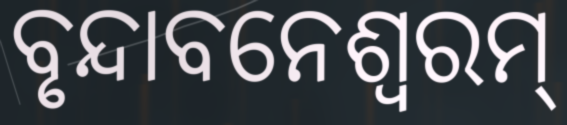
ବୃନ୍ଦାବନେଶ୍ୱରମ୍